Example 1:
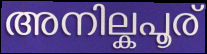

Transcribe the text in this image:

അനില്കപൂര്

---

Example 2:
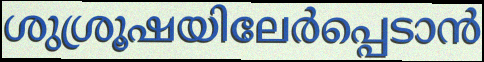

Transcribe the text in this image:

ശുശ്രൂഷയിലേർപ്പെടാൻ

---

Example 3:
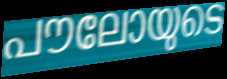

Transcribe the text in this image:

പൗലോയുടെ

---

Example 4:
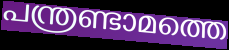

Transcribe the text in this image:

പന്ത്രണ്ടാമത്തെ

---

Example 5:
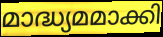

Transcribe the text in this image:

മാദ്ധ്യമമാക്കി